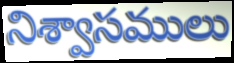
నిశ్వాసములు